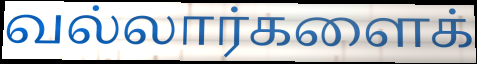
வல்லார்களைக்